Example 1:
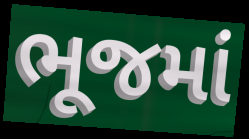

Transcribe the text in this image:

ભૂજમાં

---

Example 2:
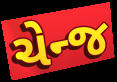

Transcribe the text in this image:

ચેન્જ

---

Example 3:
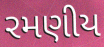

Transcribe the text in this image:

રમણીય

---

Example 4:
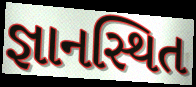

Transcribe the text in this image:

જ્ઞાનસ્થિત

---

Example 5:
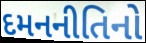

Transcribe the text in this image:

દમનનીતિનો